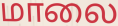
மாலை